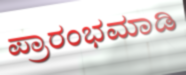
ಪ್ರಾರಂಭಮಾಡಿ